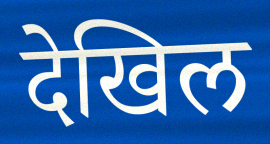
देखिल